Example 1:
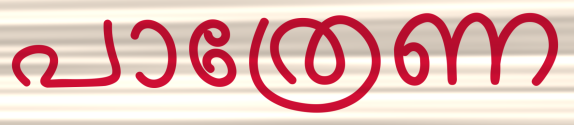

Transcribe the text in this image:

പാത്രേണ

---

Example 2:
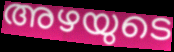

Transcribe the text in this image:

അഴയുടെ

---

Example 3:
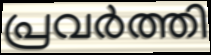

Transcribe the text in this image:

പ്രവർത്തി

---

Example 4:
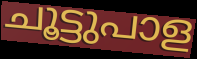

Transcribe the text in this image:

ചൂട്ടുപാള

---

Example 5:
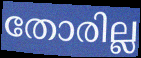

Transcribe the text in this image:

തോരില്ല